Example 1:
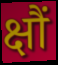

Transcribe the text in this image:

क्षौं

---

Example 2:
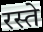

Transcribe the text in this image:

रस्ते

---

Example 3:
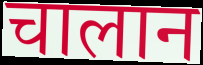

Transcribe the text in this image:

चालान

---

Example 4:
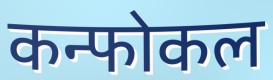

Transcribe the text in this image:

कन्फोकल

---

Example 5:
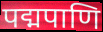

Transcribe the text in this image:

पद्मपाणि